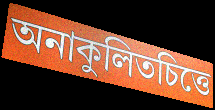
অনাকুলিতচিত্তে